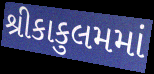
શ્રીકાકુલમમાં